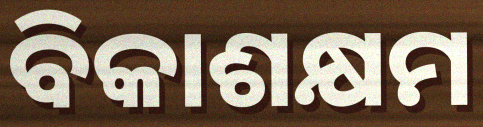
ବିକାଶକ୍ଷମ